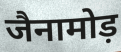
जैनामोड़